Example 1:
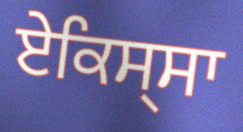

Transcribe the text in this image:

ਏਕਿਸ੍ਸਾ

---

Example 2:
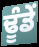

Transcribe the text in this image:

ਢੂੰਡੇਂ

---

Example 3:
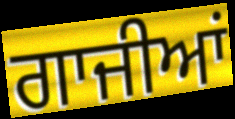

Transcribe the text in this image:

ਗਾਜੀਆਂ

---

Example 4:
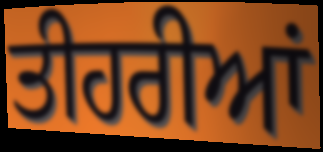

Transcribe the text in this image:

ਤੀਹਰੀਆਂ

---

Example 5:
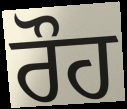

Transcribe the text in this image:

ਰੌਹ